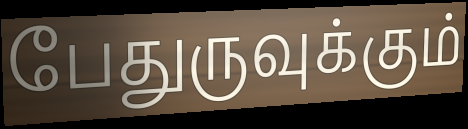
பேதுருவுக்கும்